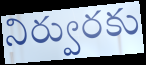
నిర్వురకు